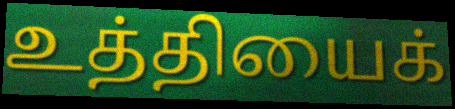
உத்தியைக்